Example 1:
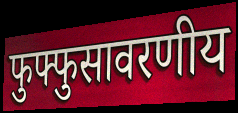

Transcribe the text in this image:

फुफ्फुसावरणीय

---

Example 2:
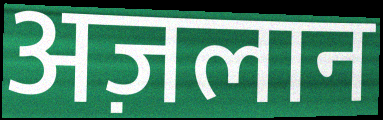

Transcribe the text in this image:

अज़लान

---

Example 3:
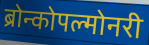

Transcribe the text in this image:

ब्रोन्कोपल्मोनरी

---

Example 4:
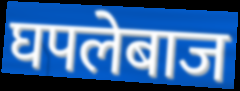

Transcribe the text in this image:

घपलेबाज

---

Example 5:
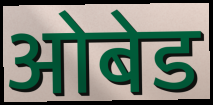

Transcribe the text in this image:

ओबेड